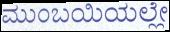
ಮುಂಬಯಿಯಲ್ಲೇ